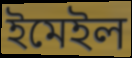
ইমেইল